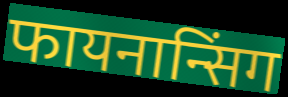
फायनान्सिंग